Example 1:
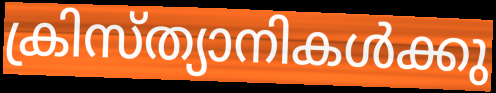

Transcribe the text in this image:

ക്രിസ്ത്യാനികൾക്കു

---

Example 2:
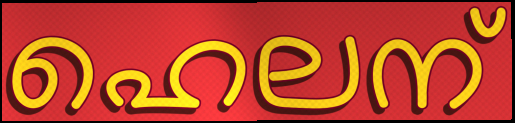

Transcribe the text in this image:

ഹെലന്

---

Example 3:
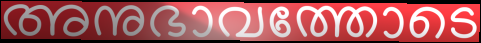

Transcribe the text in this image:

അനുഭാവത്തോടെ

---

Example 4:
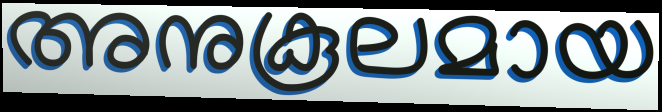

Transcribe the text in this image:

അനുകൂലമായ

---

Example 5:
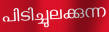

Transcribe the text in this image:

പിടിച്ചുലക്കുന്ന